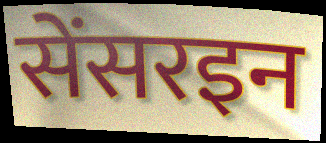
सेंसरइन